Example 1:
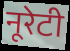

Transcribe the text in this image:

नूरेटी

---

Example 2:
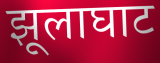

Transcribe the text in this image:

झूलाघाट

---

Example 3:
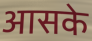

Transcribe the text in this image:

आसके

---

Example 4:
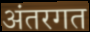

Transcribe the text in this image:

अंतरगत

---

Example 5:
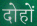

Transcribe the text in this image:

दोहों